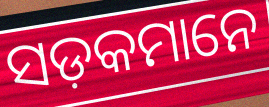
ସଡ଼କମାନେ